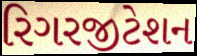
રિગરજીટેશન